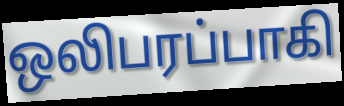
ஒலிபரப்பாகி